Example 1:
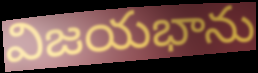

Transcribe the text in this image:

విజయభాను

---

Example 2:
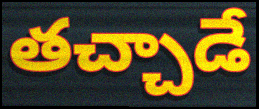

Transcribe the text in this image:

తచ్చాడే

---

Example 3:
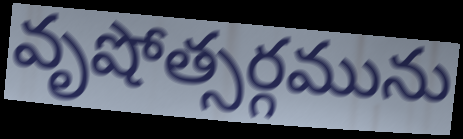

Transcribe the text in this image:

వృషోత్సర్గమును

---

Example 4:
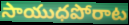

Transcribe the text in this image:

సాయుధపోరాట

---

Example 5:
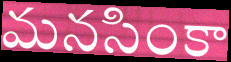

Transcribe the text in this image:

మనసింకా